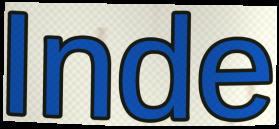
Inde